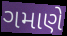
ગમાણે